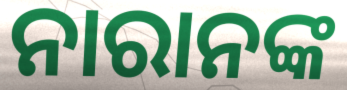
ନାରାନଙ୍କ